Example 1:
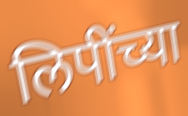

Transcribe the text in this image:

लिपींच्या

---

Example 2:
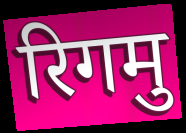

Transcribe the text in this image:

रिगमु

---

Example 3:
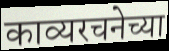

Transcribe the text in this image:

काव्यरचनेच्या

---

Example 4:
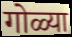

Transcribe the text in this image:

गोळ्या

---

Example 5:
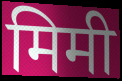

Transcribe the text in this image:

मिमी